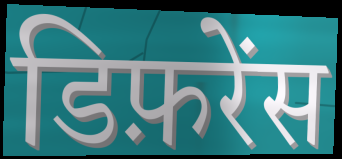
डिफ़रेंस